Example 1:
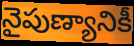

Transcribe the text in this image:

నైపుణ్యానికీ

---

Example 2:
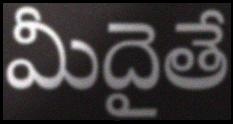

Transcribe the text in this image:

మీదైతే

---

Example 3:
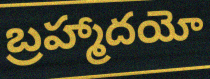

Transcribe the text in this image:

బ్రహ్మాదయో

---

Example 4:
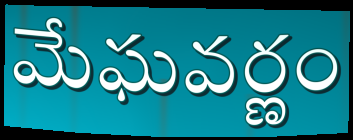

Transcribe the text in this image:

మేఘవర్ణం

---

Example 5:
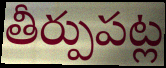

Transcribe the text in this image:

తీర్పుపట్ల